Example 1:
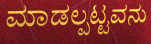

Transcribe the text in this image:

ಮಾಡಲ್ಪಟ್ಟವನು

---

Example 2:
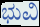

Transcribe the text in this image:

ಭುವಿ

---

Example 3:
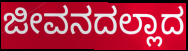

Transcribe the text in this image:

ಜೀವನದಲ್ಲಾದ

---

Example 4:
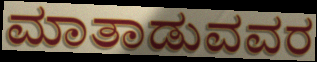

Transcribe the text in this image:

ಮಾತಾಡುವವರ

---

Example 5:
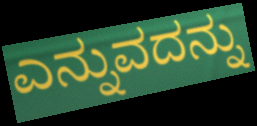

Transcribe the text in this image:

ಎನ್ನುವದನ್ನು